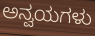
ಅನ್ವಯಗಳು